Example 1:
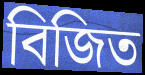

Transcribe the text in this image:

বিজিত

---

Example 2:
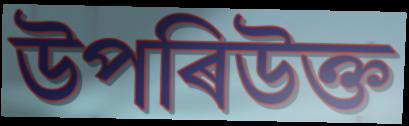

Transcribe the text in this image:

উপৰিউক্ত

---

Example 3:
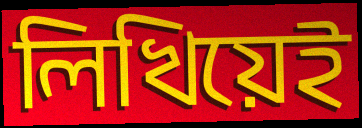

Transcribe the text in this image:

লিখিয়েই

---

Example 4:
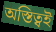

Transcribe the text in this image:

অস্তিত্বই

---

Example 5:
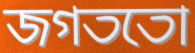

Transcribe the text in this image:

জগততো